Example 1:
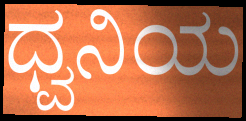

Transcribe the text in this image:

ಧ್ವನಿಯ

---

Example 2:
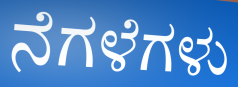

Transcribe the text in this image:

ನೆಗಳೆಗಳು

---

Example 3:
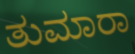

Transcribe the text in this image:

ತುಮಾರಾ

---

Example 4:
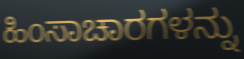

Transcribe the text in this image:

ಹಿಂಸಾಚಾರಗಳನ್ನು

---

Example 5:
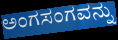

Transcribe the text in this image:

ಅಂಗಸಂಗವನ್ನು